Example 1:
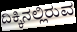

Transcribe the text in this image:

ದಿಕ್ಕಿನಲ್ಲಿರುವ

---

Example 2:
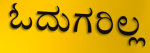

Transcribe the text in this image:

ಓದುಗರಿಲ್ಲ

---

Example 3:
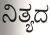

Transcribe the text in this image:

ನಿತ್ಯದ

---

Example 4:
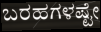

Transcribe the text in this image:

ಬರಹಗಳಷ್ಟೇ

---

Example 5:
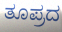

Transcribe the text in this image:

ತೂಪ್ರದ